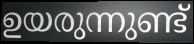
ഉയരുന്നുണ്ട്